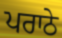
ਪਰਾਠੇ